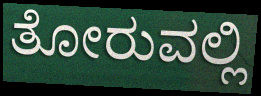
ತೋರುವಲ್ಲಿ